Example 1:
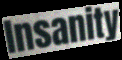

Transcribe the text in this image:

Insanity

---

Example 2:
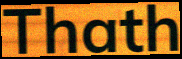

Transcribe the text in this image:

Thath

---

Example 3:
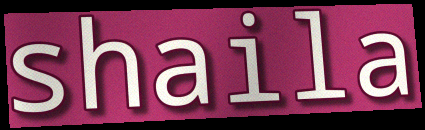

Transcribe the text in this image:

shaila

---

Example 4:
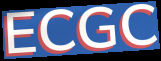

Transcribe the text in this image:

ECGC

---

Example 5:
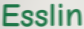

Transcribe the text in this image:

Esslin